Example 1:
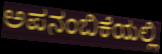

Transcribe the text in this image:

ಅಪನಂಬಿಕೆಯಲ್ಲಿ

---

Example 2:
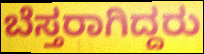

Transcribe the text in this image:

ಬೆಸ್ತರಾಗಿದ್ದರು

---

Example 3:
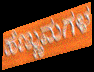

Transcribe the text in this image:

ಹೆಣ್ಣುಮಗಳ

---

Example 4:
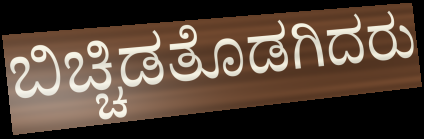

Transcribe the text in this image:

ಬಿಚ್ಚಿಡತೊಡಗಿದರು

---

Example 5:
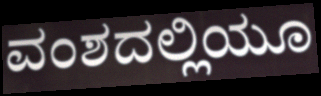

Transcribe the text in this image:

ವಂಶದಲ್ಲಿಯೂ